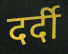
दर्दी